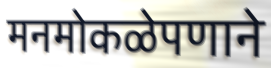
मनमोकळेपणाने